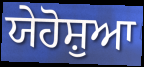
ਯੇਹੋਸ਼ੁਆ